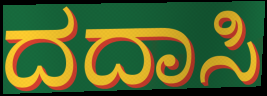
ದದಾಸಿ